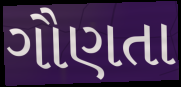
ગૌણતા